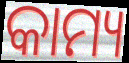
କାମ୍ୟ